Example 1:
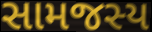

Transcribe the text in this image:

સામજસ્ય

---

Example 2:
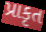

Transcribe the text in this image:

પ્રાકૃત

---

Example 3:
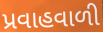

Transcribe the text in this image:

પ્રવાહવાળી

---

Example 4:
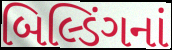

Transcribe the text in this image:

બિલ્ડિંગનાં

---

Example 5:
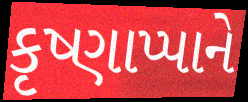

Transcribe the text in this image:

કૃષ્ણાપ્પાને